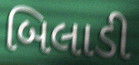
બિલાડી